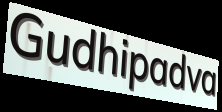
Gudhipadva